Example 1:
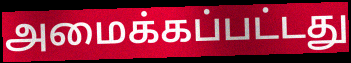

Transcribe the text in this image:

அமைக்கப்பட்டது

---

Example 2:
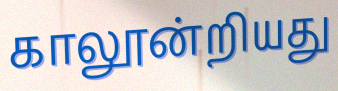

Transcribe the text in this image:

காலூன்றியது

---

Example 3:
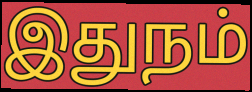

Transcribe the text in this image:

இதுநம்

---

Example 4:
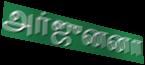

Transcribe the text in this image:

அர்ஜுனனா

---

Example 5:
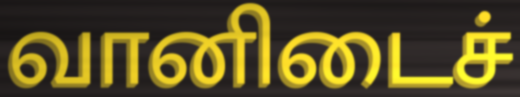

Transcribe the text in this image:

வானிடைச்